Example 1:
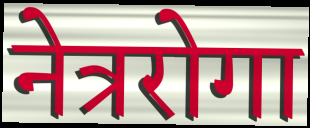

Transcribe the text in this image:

नेत्ररोगा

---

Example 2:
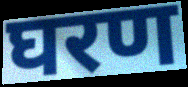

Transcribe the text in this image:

घरण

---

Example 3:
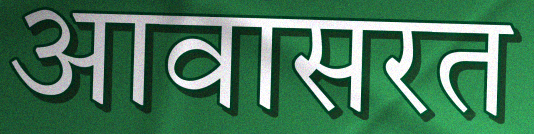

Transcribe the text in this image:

आवासरत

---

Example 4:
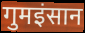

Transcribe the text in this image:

गुमइंसान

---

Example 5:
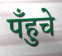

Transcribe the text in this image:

पँहुचे